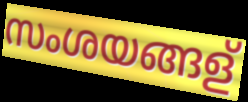
സംശയങ്ങള്